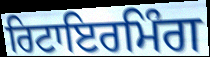
ਰਿਟਾਇਰਮਿੰਗ